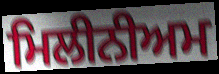
ਮਿਲੀਨੀਅਮ